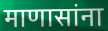
माणासांना